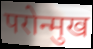
परोन्मुख